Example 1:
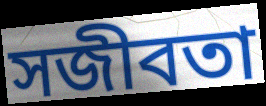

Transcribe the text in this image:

সজীবতা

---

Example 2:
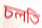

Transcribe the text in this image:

চলতি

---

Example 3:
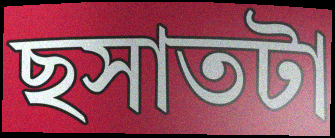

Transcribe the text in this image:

ছসাতটা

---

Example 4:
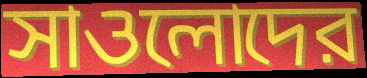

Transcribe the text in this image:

সাওলোদের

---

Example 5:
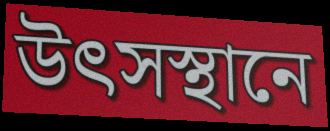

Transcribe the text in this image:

উৎসস্থানে